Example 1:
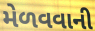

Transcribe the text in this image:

મેળવવાની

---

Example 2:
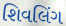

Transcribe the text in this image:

શિવલિંગ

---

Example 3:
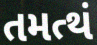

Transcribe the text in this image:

તમત્થં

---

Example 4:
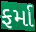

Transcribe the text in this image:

ફર્મા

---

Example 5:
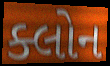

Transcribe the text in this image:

ક્લોન